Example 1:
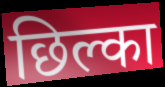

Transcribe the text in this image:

छिल्का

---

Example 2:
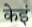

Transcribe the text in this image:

केइं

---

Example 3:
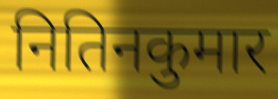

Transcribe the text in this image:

नितिनकुमार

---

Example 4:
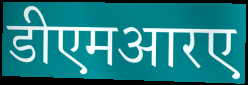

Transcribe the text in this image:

डीएमआरए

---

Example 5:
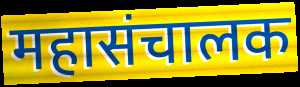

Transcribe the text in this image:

महासंचालक